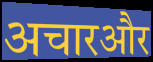
अचारऔर